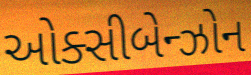
ઓક્સીબેન્ઝોન